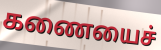
கணையைச்